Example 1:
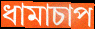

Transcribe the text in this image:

ধামাচাপ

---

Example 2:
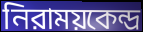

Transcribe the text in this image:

নিরাময়কেন্দ্র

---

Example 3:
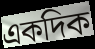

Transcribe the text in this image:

একদিক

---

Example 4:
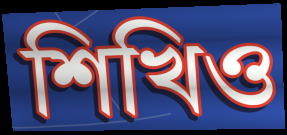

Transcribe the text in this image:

শিখিও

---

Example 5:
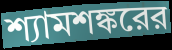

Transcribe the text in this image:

শ্যামশঙ্করের